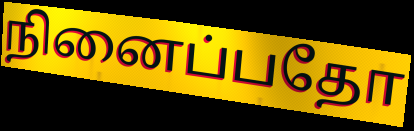
நினைப்பதோ